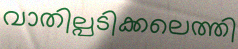
വാതില്പടിക്കലെത്തി